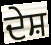
ਦੇਸ਼